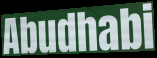
Abudhabi